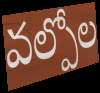
వల్పోల